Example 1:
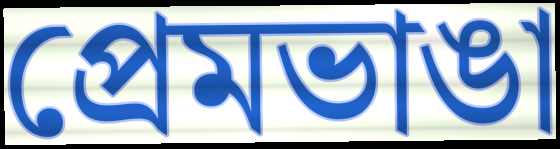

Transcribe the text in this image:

প্রেমভাঙা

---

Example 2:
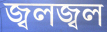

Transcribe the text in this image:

জ্বলজ্বল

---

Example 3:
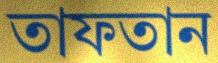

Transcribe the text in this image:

তাফতান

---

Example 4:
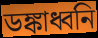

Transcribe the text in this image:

ডঙ্কাধ্বনি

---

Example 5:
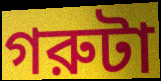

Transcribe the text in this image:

গরুটা